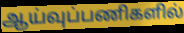
ஆய்வுப்பணிகளில்